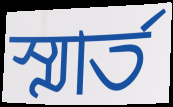
স্মার্ত